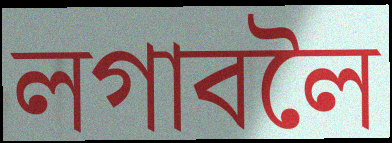
লগাবলৈ